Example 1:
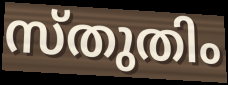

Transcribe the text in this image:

സ്തുതിം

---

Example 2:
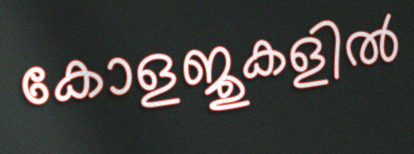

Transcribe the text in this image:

കോളജുകളിൽ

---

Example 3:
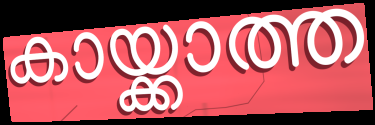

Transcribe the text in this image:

കായ്ക്കാത്ത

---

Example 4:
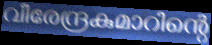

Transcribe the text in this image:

വീരേന്ദ്രകുമാറിന്റെ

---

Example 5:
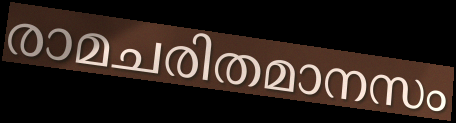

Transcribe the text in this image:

രാമചരിതമാനസം